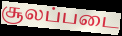
சூலப்படை